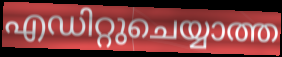
എഡിറ്റുചെയ്യാത്ത